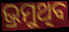
ଭ୍ରମୁଥିବ